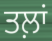
ਤਲ਼ਾਂ